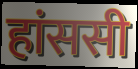
हांससी